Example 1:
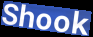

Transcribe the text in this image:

Shook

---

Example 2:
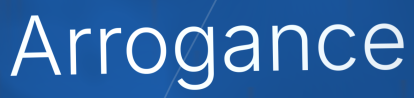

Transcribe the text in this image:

Arrogance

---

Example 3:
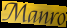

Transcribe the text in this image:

Manro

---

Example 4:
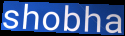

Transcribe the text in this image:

shobha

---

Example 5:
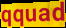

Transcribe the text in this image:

qquad